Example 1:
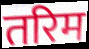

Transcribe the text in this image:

तरिम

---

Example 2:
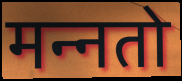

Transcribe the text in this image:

मन्नतो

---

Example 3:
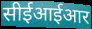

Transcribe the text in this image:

सीईआईआर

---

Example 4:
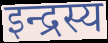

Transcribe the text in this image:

इन्द्रस्य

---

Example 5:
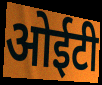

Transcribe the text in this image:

ओईटी